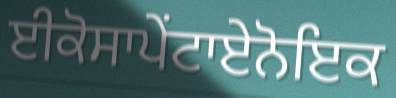
ਈਕੋਸਾਪੇਂਟਾਏਨੋਇਕ